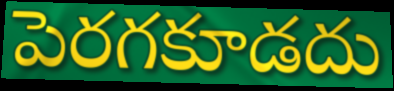
పెరగకూడదు